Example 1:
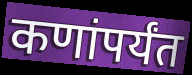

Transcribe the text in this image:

कणांपर्यंत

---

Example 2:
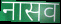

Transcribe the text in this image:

नासव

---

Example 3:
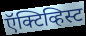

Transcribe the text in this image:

ऍक्टिव्हिस्ट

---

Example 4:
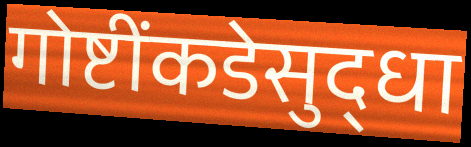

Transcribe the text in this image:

गोष्टींकडेसुद्धा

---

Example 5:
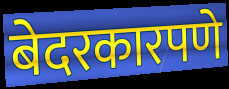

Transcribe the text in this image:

बेदरकारपणे